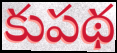
కుపథ